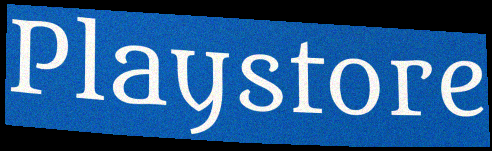
Playstore